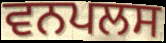
ਵਨਪਲਸ